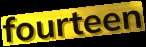
fourteen